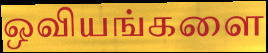
ஒவியங்களை